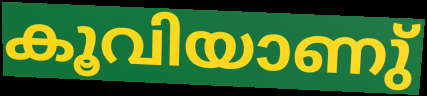
കൂവിയാണു്